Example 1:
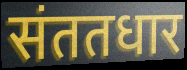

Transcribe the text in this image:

संततधार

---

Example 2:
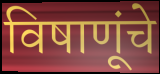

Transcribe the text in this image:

विषाणूंचे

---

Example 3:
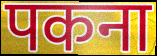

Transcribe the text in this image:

पकना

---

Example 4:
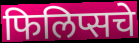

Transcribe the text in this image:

फिलिप्सचे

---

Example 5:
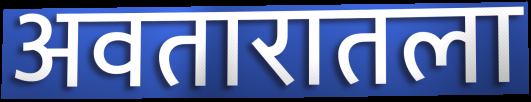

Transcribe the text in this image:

अवतारातला